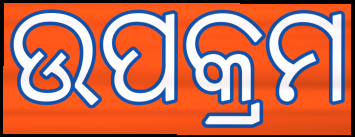
ଉପକ୍ରମ